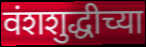
वंशशुद्धीच्या